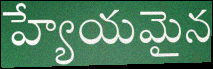
హ్యేయమైన